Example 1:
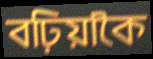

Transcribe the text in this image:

বঢ়িয়াকৈ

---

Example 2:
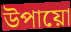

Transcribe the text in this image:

উপায়ো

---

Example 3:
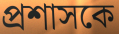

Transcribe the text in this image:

প্ৰশাসকে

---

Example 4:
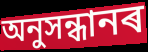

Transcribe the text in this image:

অনুসন্ধানৰ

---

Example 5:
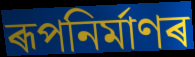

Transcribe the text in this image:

ৰূপনিৰ্মাণৰ